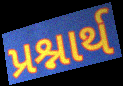
પ્રશ્નાર્થ